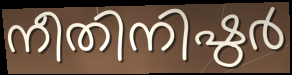
നീതിനിഷ്ഠർ